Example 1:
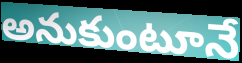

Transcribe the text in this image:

అనుకుంటూనే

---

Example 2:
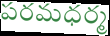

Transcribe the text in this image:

పరమధర్మ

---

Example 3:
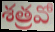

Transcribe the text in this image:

శత్రవో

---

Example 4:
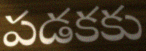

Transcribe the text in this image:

పడకకు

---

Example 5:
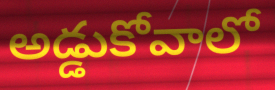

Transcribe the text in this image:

అడ్డుకోవాలో